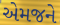
એમજને